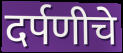
दर्पणीचे